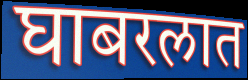
घाबरलात